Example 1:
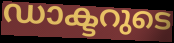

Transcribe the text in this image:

ഡാക്ടറുടെ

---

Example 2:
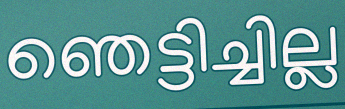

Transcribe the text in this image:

ഞെട്ടിച്ചില്ല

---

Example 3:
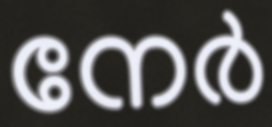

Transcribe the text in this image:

നേർ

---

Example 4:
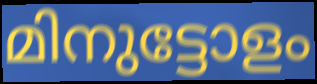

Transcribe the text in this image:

മിനുട്ടോളം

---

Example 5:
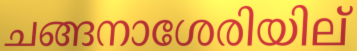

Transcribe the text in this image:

ചങ്ങനാശേരിയില്